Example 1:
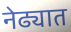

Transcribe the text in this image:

नेढ्यात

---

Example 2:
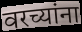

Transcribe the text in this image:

वरच्यांना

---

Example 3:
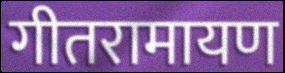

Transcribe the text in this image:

गीतरामायण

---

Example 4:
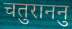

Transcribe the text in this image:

चतुराननु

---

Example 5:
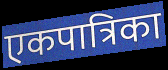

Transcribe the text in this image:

एकपात्रिका